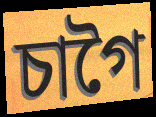
চাগৈ